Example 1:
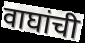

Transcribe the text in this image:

वाघांची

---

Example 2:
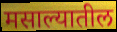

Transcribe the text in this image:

मसाल्यातील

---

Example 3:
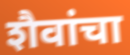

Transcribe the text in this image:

शैवांचा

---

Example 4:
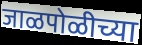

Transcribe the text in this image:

जाळपोळीच्या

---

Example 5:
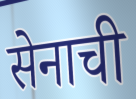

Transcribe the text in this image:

सेनाची